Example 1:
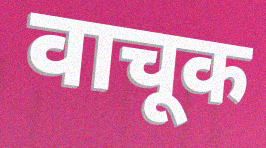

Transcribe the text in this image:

वाचूक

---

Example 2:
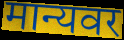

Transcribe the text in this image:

मान्यवर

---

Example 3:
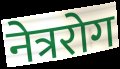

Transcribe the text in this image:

नेत्ररोग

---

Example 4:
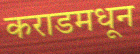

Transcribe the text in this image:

कराडमधून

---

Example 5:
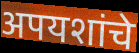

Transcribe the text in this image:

अपयशांचे